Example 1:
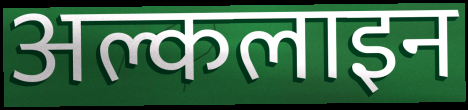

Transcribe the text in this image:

अल्कलाइन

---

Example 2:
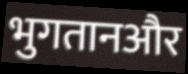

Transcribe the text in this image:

भुगतानऔर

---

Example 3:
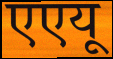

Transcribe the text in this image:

एएयू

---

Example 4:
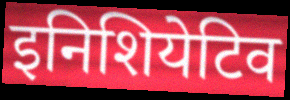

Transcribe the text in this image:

इनिशियेटिव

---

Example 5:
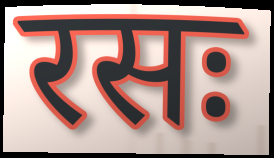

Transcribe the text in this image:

रसः